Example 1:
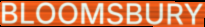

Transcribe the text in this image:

BLOOMSBURY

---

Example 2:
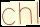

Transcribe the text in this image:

chl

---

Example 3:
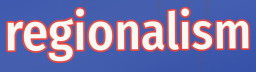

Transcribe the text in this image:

regionalism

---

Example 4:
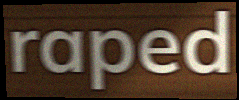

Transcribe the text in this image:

raped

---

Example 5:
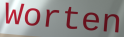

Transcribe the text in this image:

Worten